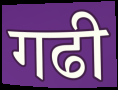
गढी